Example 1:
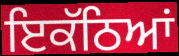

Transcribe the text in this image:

ਇਕੱਠਿਆਂ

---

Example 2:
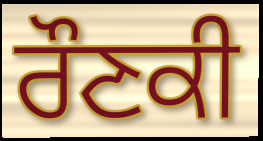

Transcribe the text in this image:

ਰੌਣਕੀ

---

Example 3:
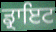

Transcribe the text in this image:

ਡ੍ਰਾਇਟ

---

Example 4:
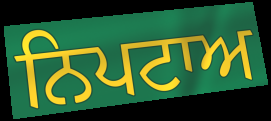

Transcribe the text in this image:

ਨਿਪਟਾਅ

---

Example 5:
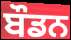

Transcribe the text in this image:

ਬੌਡਨ